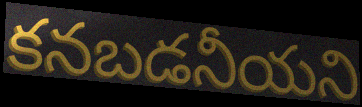
కనబడనీయని